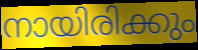
നായിരിക്കും